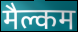
मैल्कम